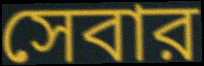
সেবার